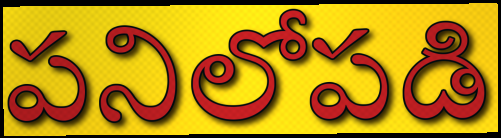
పనిలోపడి